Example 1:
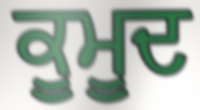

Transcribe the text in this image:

ਕੂਮੂਦ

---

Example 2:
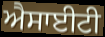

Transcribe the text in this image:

ਐਸਾਈਟੀ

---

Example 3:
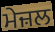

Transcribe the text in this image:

ਮੇਜ਼ਲ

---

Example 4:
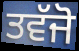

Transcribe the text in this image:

ਤਵੱਜੋ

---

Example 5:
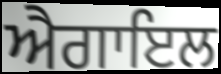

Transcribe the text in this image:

ਐਗਾਇਲ